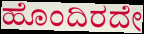
ಹೊಂದಿರದೇ